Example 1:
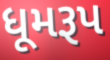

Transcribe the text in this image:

ધૂમરૂપ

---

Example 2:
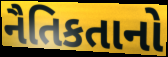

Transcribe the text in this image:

નૈતિકતાનો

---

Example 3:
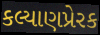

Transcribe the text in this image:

કલ્યાણપ્રેરક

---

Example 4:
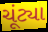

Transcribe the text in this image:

ચૂંટ્યા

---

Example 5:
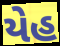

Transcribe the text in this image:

યેહ